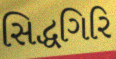
સિદ્ધગિરિ